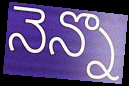
నెన్నొ